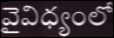
వైవిధ్యంలో